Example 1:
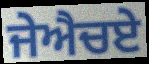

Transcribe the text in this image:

ਜੇਐਚਏ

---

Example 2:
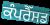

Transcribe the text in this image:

ਕੰਪਰੈੱਸਡ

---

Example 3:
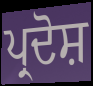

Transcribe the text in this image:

ਪ੍ਰਦੋਸ਼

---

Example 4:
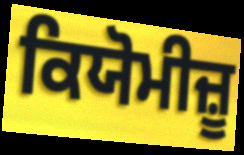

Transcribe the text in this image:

ਕਿਯੋਮੀਜ਼ੂ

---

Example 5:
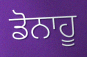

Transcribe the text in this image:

ਡੋਨਾਹੂ